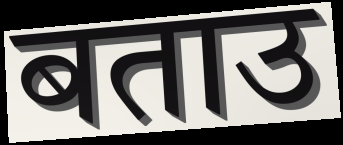
बताउ